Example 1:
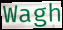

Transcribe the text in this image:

Wagh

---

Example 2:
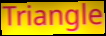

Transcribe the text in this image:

Triangle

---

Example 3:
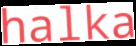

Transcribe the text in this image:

halka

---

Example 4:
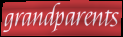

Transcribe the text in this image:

grandparents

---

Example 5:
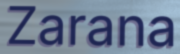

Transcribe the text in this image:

Zarana